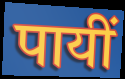
पायीं